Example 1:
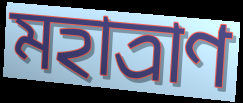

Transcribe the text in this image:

মহাত্রাণ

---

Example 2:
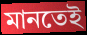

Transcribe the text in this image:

মানতেই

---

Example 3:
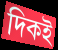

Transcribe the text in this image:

দিকই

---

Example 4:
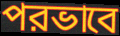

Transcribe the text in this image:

পরভাবে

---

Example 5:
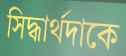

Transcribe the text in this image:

সিদ্ধার্থদাকে